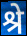
श्रे